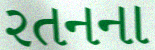
રતનના